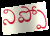
నిప్పో